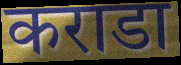
कराडा